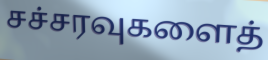
சச்சரவுகளைத்